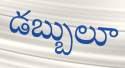
డబ్బులూ